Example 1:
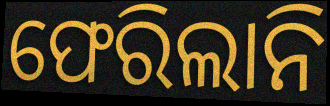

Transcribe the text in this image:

ଫେରିଲାନି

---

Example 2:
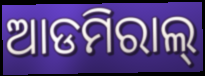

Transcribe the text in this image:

ଆଡମିରାଲ୍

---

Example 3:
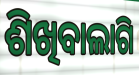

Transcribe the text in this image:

ଶିଖିବାଲାଗି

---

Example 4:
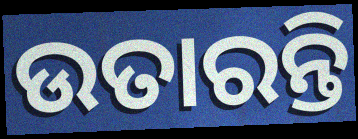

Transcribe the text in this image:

ଉତାରନ୍ତି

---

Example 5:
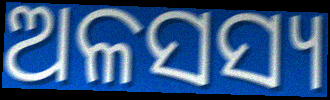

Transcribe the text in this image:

ଅଳସସ୍ୟ